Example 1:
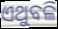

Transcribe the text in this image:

ଏଥୁବଳି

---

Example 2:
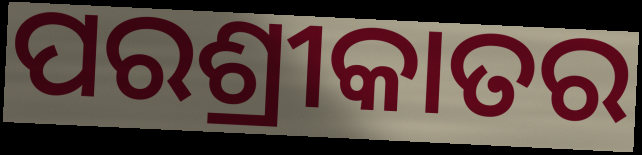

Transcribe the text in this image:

ପରଶ୍ରୀକାତର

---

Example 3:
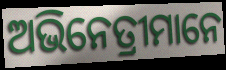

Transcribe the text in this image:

ଅଭିନେତ୍ରୀମାନେ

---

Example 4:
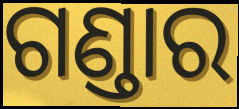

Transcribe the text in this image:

ଗଣ୍ଡାର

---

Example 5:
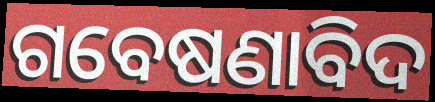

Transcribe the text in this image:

ଗବେଷଣାବିଦ